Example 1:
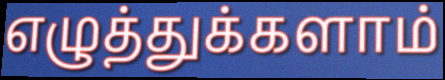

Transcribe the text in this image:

எழுத்துக்களாம்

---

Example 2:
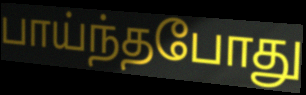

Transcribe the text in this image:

பாய்ந்தபோது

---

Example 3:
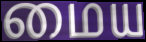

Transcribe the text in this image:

மைய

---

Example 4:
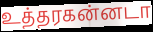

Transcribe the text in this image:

உத்தரகன்னடா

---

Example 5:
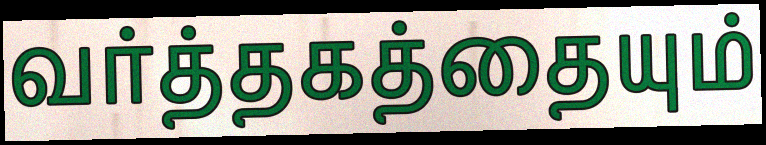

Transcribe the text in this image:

வர்த்தகத்தையும்